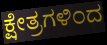
ಕ್ಷೇತ್ರಗಳಿಂದ